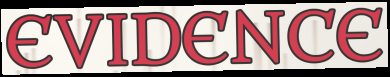
EVIDENCE